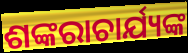
ଶଙ୍କରାଚାର୍ଯ୍ୟଙ୍କ